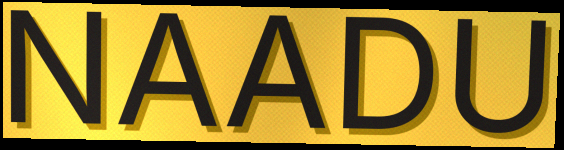
NAADU